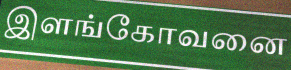
இளங்கோவனை